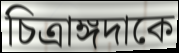
চিত্রাঙ্গদাকে